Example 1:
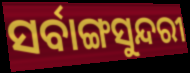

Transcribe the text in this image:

ସର୍ବାଙ୍ଗସୁନ୍ଦରୀ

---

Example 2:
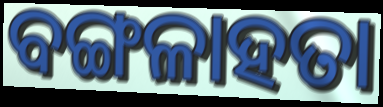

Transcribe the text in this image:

ବଙ୍ଗଳାହତା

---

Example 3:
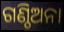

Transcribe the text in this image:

ଗଣ୍ଠିଅନା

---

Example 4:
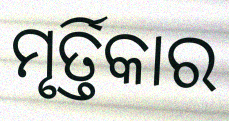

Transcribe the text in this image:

ମୃର୍ତ୍ତିକାର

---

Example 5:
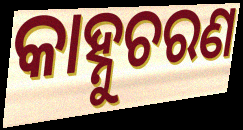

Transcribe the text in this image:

କାହ୍ନୁଚରଣ